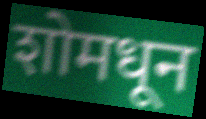
शोमधून